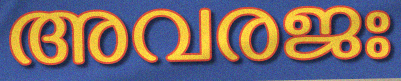
അവരജഃ